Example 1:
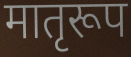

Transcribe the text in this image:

मातृरूप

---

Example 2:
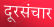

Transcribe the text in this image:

दूरसंचार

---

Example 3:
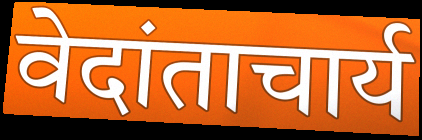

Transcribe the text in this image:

वेदांताचार्य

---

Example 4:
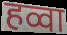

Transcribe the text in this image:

हव्वा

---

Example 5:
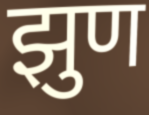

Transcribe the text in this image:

झुण